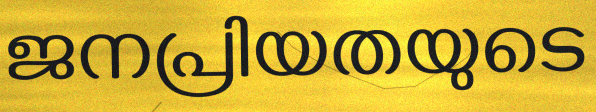
ജനപ്രിയതയുടെ